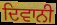
ਦਿਵਾਨੀ